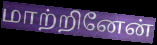
மாற்றினேன்